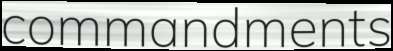
commandments